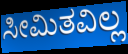
ಸೀಮಿತವಿಲ್ಲ